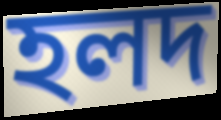
হলদ